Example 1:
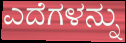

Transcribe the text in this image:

ಎದೆಗಳನ್ನು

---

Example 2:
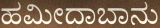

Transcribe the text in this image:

ಹಮೀದಾಬಾನು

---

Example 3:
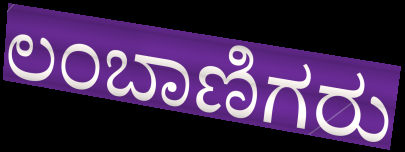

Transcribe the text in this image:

ಲಂಬಾಣಿಗರು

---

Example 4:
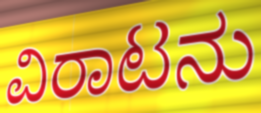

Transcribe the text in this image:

ವಿರಾಟನು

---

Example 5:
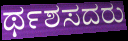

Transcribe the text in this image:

ರ್ಥಶಸದರು